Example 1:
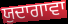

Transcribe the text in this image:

ਯੁਦਾਗਾਵਾ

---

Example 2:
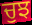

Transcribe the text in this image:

ਚੁਝ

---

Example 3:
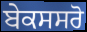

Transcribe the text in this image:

ਬੇਕਸਸਰੋ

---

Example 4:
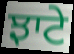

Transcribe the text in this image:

ਝਾਟੇ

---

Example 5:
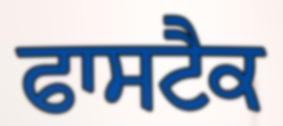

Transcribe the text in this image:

ਫਾਸਟੈਕ